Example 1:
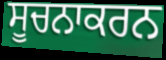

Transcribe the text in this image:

ਸੂਚਨਾਕਰਨ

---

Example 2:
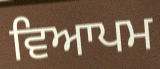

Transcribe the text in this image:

ਵਿਆਪਮ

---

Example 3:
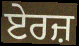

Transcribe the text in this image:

ਏਰਜ਼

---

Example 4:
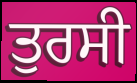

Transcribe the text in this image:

ਤੁਰਸੀ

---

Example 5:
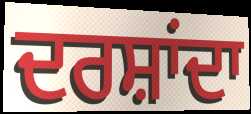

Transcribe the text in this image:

ਦਰਸ਼ਾਂਦਾ